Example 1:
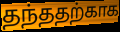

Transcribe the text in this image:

தந்ததற்காக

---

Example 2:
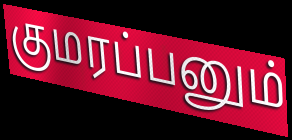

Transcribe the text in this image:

குமரப்பனும்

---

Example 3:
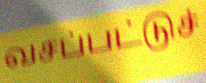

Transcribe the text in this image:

வசப்பட்டுச்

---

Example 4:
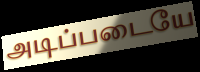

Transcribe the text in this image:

அடிப்படையே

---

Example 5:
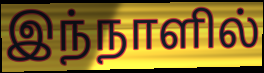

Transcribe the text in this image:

இந்நாளில்